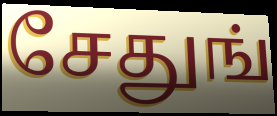
சேதுங்